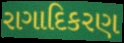
રાગાદિકરણ